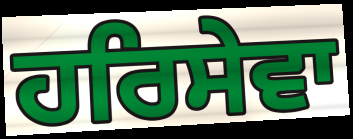
ਹਰਿਸੇਵਾ